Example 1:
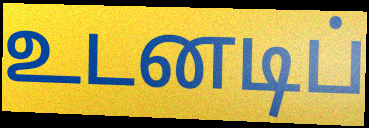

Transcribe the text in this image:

உடனடிப்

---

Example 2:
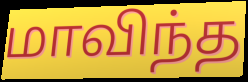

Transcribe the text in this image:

மாவிந்த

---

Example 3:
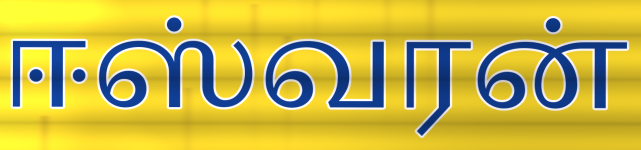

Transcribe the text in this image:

ஈஸ்வரன்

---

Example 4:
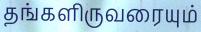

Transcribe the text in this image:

தங்களிருவரையும்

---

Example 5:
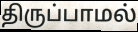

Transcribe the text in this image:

திருப்பாமல்